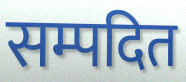
सम्पदित